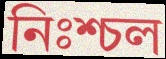
নিঃশ্চল